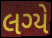
લગ્યે